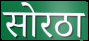
सोरठा